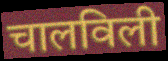
चालविली